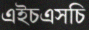
এইচএসচি